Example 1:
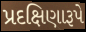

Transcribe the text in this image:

પ્રદક્ષિણારૂપે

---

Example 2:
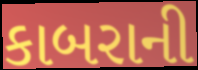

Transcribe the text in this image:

કાબરાની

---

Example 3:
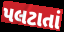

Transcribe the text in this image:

પલટાતાં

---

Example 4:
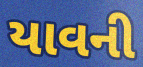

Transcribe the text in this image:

યાવની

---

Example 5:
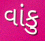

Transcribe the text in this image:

વાંકુ